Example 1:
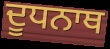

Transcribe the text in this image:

ਦੂਧਨਾਥ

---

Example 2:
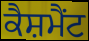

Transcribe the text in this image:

ਕੈਸ਼ਮੈਂਟ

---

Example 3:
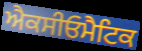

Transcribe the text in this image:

ਐਕਸੀਓਮੈਟਿਕ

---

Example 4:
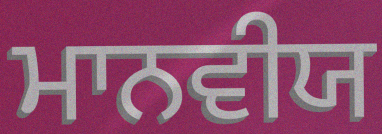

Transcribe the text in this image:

ਮਾਨਵੀਯ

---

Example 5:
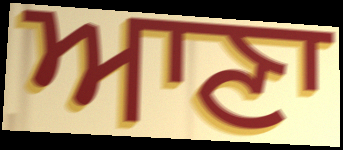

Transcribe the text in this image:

ਆਣਾ